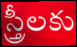
స్త్రీలకు